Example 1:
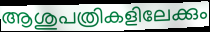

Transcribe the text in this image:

ആശുപത്രികളിലേക്കും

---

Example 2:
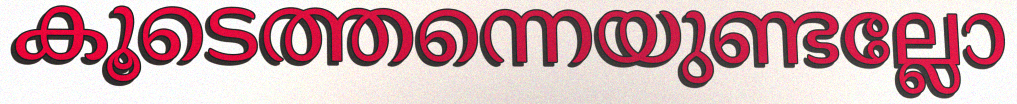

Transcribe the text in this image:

കൂടെത്തന്നെയുണ്ടല്ലോ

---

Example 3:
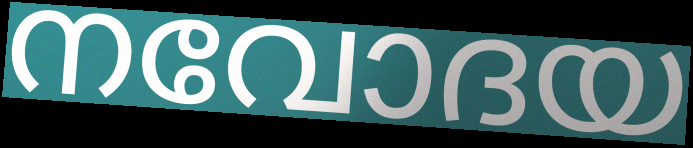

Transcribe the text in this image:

നവോദയ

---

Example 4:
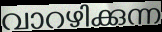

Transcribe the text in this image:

വാറഴിക്കുന്ന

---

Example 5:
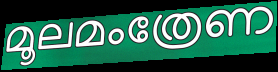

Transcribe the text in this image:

മൂലമംത്രേണ